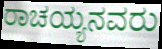
ರಾಚಯ್ಯನವರು